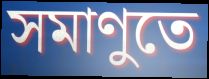
সমাণুতে